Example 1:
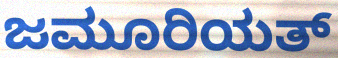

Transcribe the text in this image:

ಜಮೂರಿಯತ್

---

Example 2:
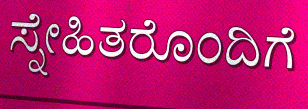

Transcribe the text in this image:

ಸ್ನೇಹಿತರೊಂದಿಗೆ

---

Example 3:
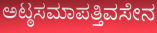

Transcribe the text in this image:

ಅಟ್ಠಸಮಾಪತ್ತಿವಸೇನ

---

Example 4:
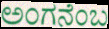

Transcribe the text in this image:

ಅಂಗನೆಂಬ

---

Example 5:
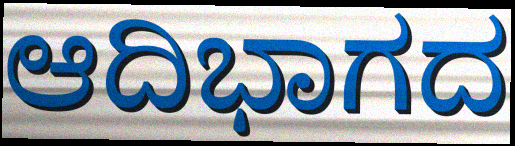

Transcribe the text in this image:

ಆದಿಭಾಗದ